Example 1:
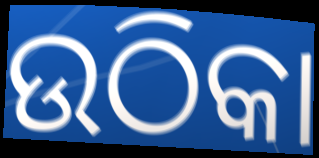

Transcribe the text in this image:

ଉଠିକା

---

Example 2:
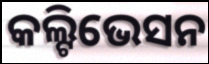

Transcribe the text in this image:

କଲ୍ଟିଭେସନ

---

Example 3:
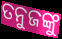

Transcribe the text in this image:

ତନୁଜଙ୍କୁ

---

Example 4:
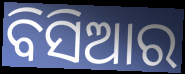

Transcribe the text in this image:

ବିସିଆର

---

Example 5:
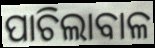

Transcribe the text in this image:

ପାଚିଲାବାଳ